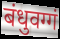
बंधुवग्गं